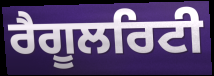
ਰੈਗੂਲਰਿਟੀ